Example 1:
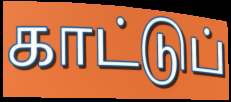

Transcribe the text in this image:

காட்டுப்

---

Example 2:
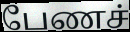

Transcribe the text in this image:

பேணச்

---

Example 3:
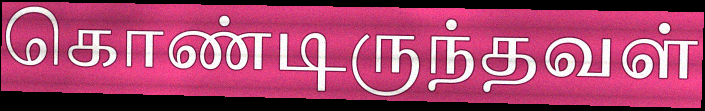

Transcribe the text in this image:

கொண்டிருந்தவள்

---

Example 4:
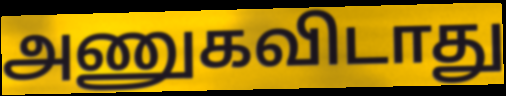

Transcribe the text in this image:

அணுகவிடாது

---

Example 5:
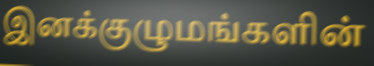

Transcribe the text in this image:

இனக்குழுமங்களின்